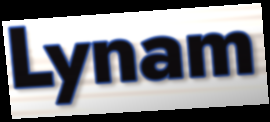
Lynam